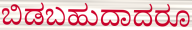
ಬಿಡಬಹುದಾದರೂ